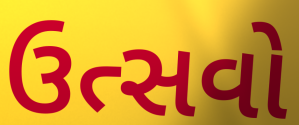
ઉત્સવો